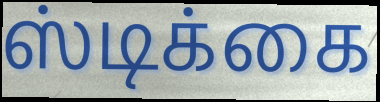
ஸ்டிக்கை